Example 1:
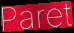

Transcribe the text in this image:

Paret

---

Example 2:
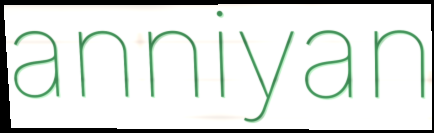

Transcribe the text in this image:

anniyan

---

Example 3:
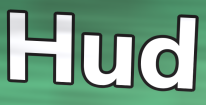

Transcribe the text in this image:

Hud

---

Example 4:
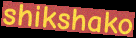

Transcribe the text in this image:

shikshako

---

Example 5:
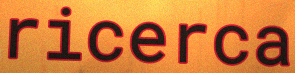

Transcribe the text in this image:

ricerca